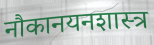
नौकानयनशास्त्र